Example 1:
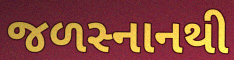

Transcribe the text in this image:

જળસ્નાનથી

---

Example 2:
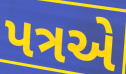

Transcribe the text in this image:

પત્રએ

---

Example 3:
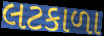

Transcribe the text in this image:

લટકાળા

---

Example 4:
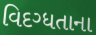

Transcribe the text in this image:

વિદગ્ધતાના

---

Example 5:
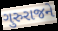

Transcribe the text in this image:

ગુરુરાજને